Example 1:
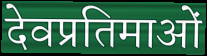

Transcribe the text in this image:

देवप्रतिमाओं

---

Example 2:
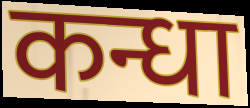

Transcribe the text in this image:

कन्धा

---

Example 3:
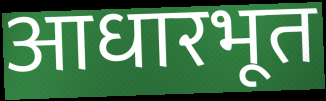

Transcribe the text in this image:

आधारभूत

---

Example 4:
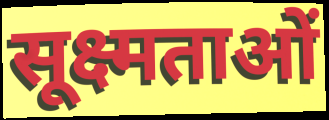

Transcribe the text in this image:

सूक्ष्मताओं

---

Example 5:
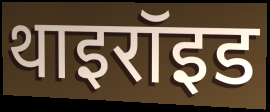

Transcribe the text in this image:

थाइरॉइड